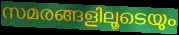
സമരങ്ങളിലൂടെയും